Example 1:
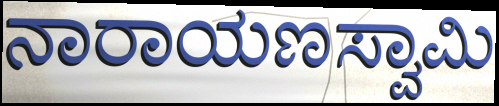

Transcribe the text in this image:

ನಾರಾಯಣಸ್ವಾಮಿ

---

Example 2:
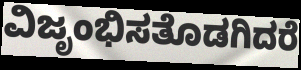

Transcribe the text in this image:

ವಿಜೃಂಭಿಸತೊಡಗಿದರೆ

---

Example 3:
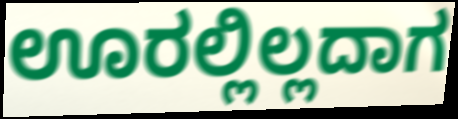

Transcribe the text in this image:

ಊರಲ್ಲಿಲ್ಲದಾಗ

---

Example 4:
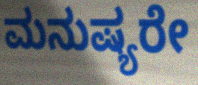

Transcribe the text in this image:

ಮನುಷ್ಯರೇ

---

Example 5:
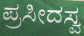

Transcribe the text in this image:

ಪ್ರಸೀದಸ್ವ